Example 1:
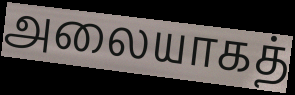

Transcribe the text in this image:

அலையாகத்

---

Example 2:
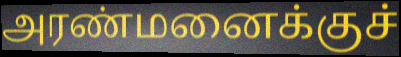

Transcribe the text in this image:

அரண்மனைக்குச்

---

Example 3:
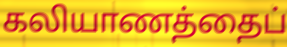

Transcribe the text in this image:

கலியாணத்தைப்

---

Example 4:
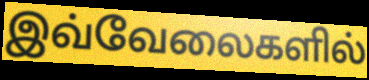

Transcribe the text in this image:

இவ்வேலைகளில்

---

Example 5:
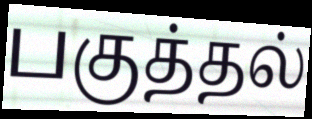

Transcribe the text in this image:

பகுத்தல்